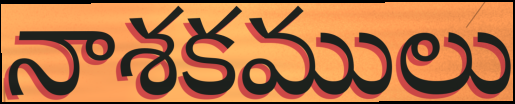
నాశకములు